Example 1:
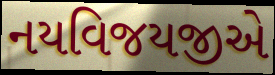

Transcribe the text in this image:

નયવિજયજીએ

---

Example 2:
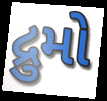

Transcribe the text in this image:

દ્રુમો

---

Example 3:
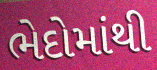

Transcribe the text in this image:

ભેદોમાંથી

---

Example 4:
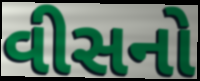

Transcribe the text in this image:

વીસનો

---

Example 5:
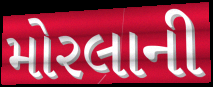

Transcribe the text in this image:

મોરલાની